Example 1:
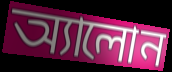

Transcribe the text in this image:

অ্যালোন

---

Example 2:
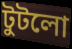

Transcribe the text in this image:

টুটলো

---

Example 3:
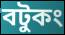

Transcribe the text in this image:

বটুকং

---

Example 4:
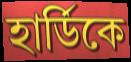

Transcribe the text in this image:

হার্ডিকে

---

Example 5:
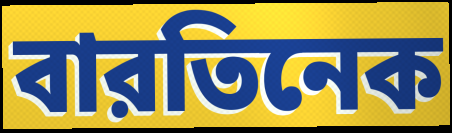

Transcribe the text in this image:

বারতিনেক